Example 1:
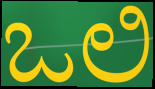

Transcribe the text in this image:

ಒಲಿ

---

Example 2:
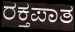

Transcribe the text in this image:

ರಕ್ತಪಾತ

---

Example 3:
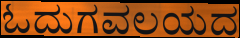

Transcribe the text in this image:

ಓದುಗವಲಯದ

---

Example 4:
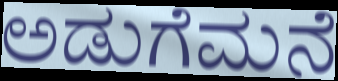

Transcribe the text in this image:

ಅಡುಗೆಮನೆ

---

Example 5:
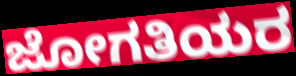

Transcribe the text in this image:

ಜೋಗತಿಯರ